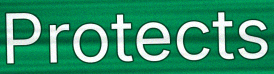
Protects